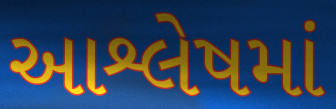
આશ્લેષમાં